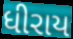
ધીરાય